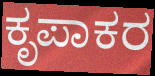
ಕೃಪಾಕರ